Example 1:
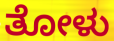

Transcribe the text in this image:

ತೋಳು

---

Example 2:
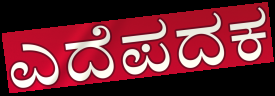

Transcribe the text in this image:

ಎದೆಪದಕ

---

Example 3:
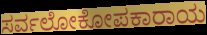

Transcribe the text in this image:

ಸರ್ವಲೋಕೋಪಕಾರಾಯ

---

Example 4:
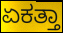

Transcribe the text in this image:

ಏಕತ್ತಾ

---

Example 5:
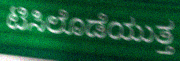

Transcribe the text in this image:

ಟಿಸಿಲೊಡೆಯುತ್ತ